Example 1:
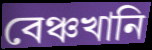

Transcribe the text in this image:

বেঞ্চখানি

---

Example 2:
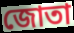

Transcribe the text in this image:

জোতা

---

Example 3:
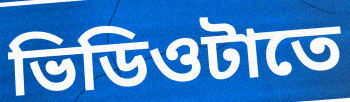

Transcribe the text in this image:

ভিডিওটাতে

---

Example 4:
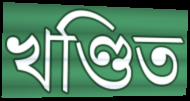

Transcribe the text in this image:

খণ্ডিত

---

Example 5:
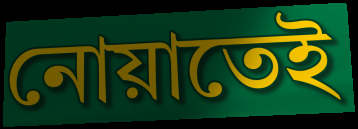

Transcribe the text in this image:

নোয়াতেই